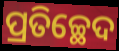
ପ୍ରତିଚ୍ଛେଦ